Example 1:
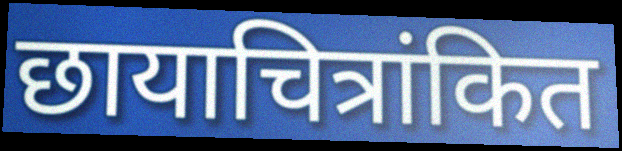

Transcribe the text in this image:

छायाचित्रांकित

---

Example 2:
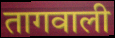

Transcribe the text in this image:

तागवाली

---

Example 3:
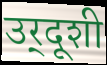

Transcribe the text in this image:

उर्दूशी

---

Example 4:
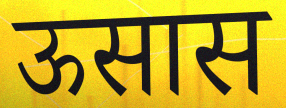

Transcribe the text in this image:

ऊसास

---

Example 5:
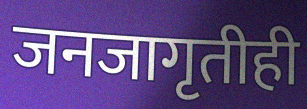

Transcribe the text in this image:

जनजागृतीही